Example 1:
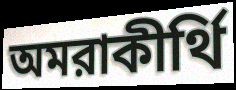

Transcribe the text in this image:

অমরাকীর্থি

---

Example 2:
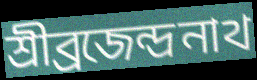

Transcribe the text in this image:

শ্রীব্রজেন্দ্রনাথ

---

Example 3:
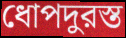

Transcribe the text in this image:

ধোপদুরস্ত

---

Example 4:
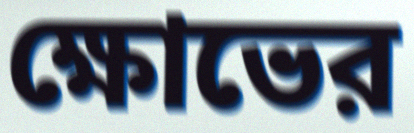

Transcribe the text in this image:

ক্ষোভের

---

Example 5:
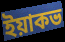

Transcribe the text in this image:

ইয়াকভ